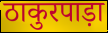
ठाकुरपाड़ा